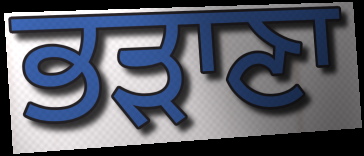
ਭੜਾਣਾ